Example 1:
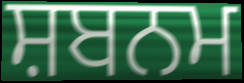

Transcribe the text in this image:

ਸ਼ਬਨਮ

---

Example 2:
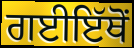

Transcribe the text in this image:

ਗਈਇੱਥੋਂ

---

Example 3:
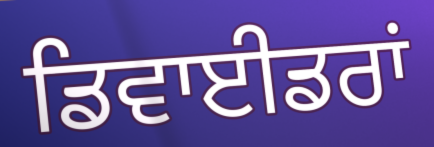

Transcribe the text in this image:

ਡਿਵਾਈਡਰਾਂ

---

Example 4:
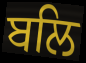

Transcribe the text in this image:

ਬਲਿ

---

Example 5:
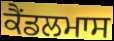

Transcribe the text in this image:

ਕੈਂਡਲਮਾਸ